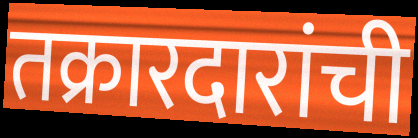
तक्रारदारांची